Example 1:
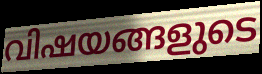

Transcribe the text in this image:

വിഷയങ്ങളുടെ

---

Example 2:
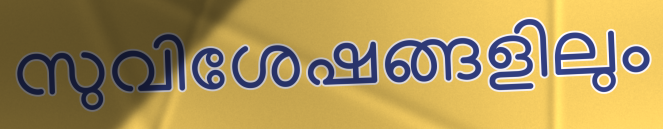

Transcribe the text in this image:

സുവിശേഷങ്ങളിലും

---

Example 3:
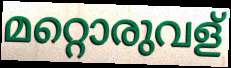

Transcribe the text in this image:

മറ്റൊരുവള്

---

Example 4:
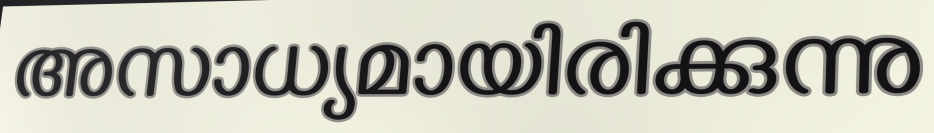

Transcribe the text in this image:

അസാധ്യമായിരിക്കുന്നു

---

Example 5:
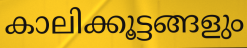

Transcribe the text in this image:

കാലിക്കൂട്ടങ്ങളും